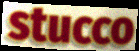
stucco